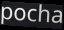
pocha